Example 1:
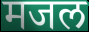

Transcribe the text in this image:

मजल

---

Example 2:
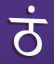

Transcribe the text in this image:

ठं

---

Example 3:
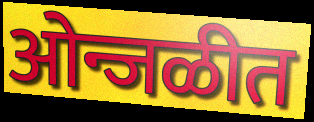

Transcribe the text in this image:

ओन्जळीत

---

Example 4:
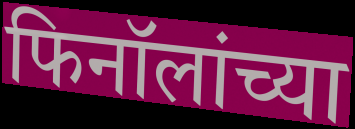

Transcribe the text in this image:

फिनॉलांच्या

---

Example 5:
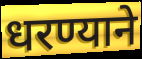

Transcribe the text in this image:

धरण्याने